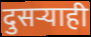
दुसर्‍याही